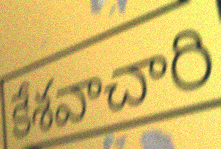
కేశవాచారి